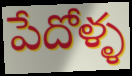
పేదోళ్ళ